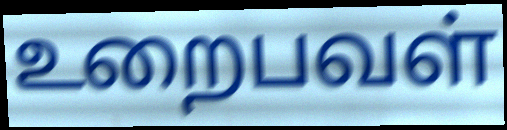
உறைபவள்